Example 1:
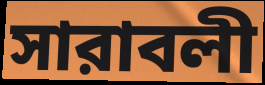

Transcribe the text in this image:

সারাবলী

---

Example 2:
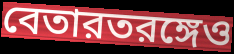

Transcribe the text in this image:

বেতারতরঙ্গেও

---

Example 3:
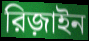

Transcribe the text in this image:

রিজ়াইন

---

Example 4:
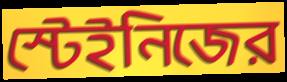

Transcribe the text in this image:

স্টেইনিজের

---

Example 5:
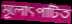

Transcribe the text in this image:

মূলোৎপাটিত